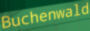
Buchenwald